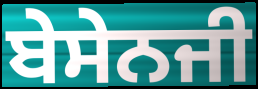
ਬੇਸੇਨਜੀ